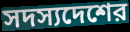
সদস্যদেশের